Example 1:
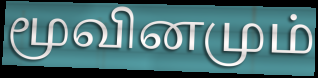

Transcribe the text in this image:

மூவினமும்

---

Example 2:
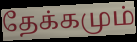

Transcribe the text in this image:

தேக்கமும்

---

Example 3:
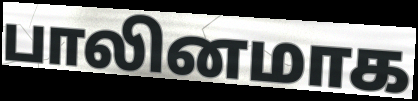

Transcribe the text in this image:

பாலினமாக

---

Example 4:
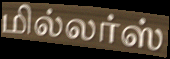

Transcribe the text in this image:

மில்லர்ஸ்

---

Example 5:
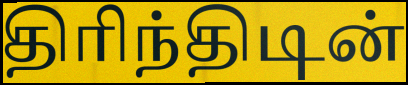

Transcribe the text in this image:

திரிந்திடின்